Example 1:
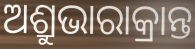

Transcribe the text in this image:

ଅଶ୍ରୁଭାରାକ୍ରାନ୍ତ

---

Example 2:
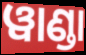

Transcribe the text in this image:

ୱାଣ୍ଡା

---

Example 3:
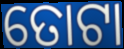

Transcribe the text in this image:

ତୋଟା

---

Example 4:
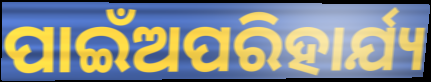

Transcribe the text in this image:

ପାଇଁଅପରିହାର୍ଯ୍ୟ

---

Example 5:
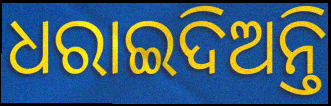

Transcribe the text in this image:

ଧରାଇଦିଅନ୍ତି